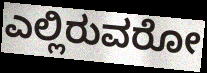
ಎಲ್ಲಿರುವರೋ